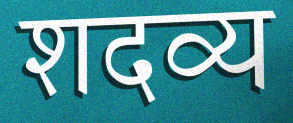
शदव्य